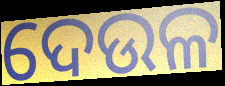
ଦେଉଳ